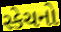
સ્કેચનો